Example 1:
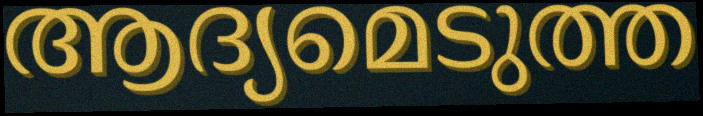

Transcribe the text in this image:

ആദ്യമെടുത്ത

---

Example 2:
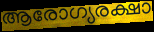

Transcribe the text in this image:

ആരോഗ്യരക്ഷാ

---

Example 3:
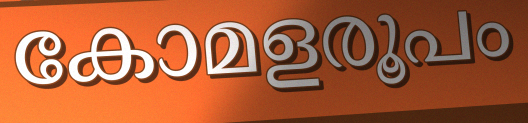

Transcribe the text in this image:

കോമളരൂപം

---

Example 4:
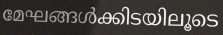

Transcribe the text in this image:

മേഘങ്ങൾക്കിടയിലൂടെ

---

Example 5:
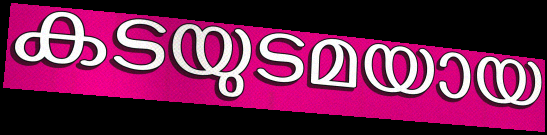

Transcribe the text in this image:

കടയുടമയായ